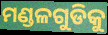
ମଣ୍ଡଳଗୁଡିକୁ